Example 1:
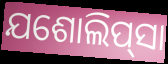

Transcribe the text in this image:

ଯଶୋଲିପ୍‌ସା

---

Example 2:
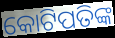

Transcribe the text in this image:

କୋଟିପତିଙ୍କ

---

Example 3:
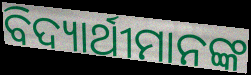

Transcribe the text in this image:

ବିଦ୍ୟାର୍ଥୀମାନଙ୍କ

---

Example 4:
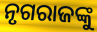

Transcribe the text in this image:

ନୃଗରାଜଙ୍କୁ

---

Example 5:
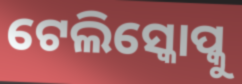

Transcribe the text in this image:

ଟେଲିସ୍କୋପ୍କୁ